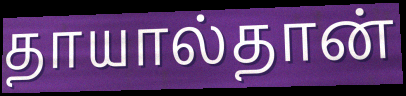
தாயால்தான்